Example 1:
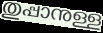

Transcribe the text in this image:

തുപ്പാനുള്ള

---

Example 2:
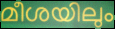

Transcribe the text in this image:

മീശയിലും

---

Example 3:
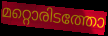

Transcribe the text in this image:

മറ്റൊരിടത്തോ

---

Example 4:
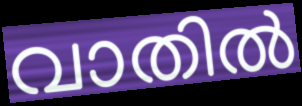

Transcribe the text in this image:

വാതിൽ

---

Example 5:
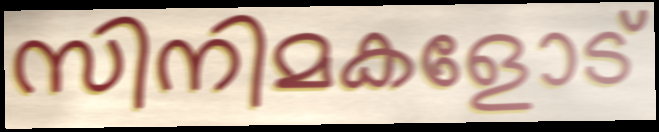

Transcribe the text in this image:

സിനിമകളോട്